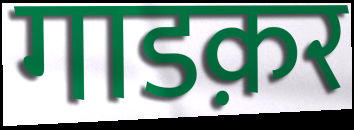
गाडक़र